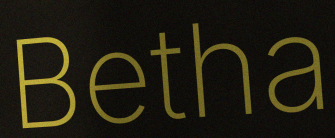
Betha